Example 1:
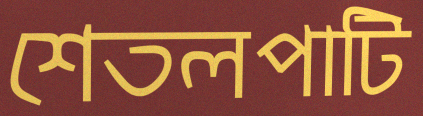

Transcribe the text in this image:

শেতলপাটি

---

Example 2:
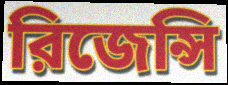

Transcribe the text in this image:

রিজেন্সি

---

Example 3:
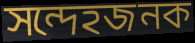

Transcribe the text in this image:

সন্দেহজনক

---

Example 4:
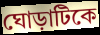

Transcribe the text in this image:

ঘোড়াটিকে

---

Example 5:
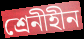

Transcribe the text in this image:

শ্রেনীহীন